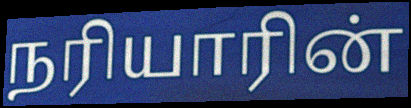
நரியாரின்